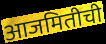
आजमितीची